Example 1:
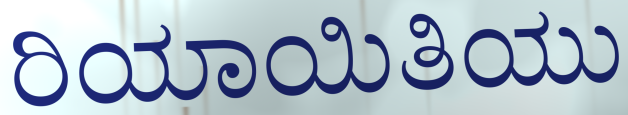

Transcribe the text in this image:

ರಿಯಾಯಿತಿಯು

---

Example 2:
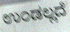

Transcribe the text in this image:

ಉಂಡಲ್ಲದೆ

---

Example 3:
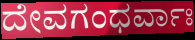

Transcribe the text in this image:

ದೇವಗಂಧರ್ವಾಃ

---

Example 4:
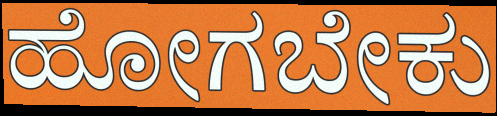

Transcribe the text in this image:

ಹೋಗಬೇಕು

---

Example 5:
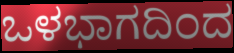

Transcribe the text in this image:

ಒಳಭಾಗದಿಂದ